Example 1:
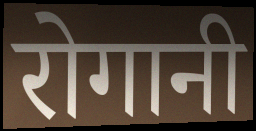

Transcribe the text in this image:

रोगानी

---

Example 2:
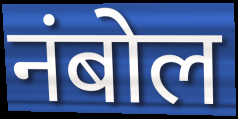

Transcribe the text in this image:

नंबोल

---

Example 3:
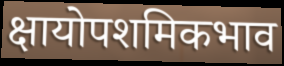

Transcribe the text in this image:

क्षायोपशमिकभाव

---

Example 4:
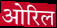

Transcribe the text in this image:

ओरिल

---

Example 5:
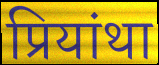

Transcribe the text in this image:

प्रियांथा